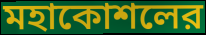
মহাকোশলের